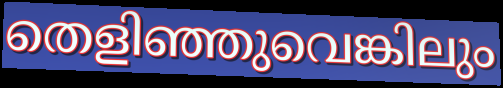
തെളിഞ്ഞുവെങ്കിലും